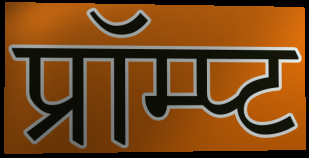
प्रॉम्प्ट